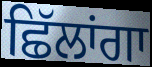
ਛਿੱਲਾਂਗਾ